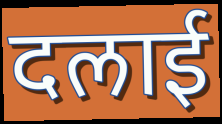
दलाई